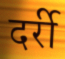
दर्री